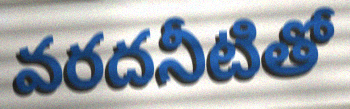
వరదనీటితో